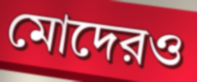
মোদেরও